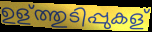
ഉള്ത്തുടിപ്പുകള്